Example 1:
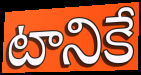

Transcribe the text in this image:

టానికే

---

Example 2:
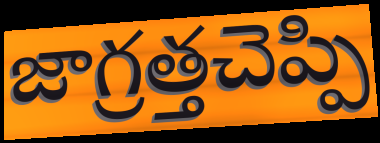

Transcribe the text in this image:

జాగ్రత్తచెప్పి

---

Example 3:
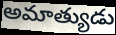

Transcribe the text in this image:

అమాత్యుడు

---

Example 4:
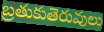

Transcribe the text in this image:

బ్రతుకుతెరువులు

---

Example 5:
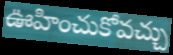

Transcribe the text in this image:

ఊహించుకోవచ్చు